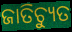
ଜାତିଚ୍ୟୁତ